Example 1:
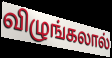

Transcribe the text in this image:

விழுங்கலால்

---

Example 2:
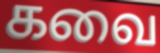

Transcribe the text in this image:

கவை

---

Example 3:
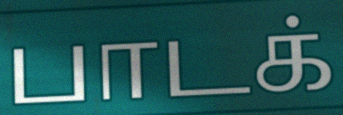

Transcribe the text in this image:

பாடக்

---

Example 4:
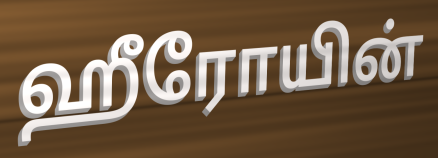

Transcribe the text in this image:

ஹீரோயின்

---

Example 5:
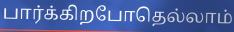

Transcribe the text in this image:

பார்க்கிறபோதெல்லாம்